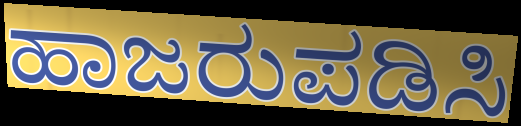
ಹಾಜರುಪಡಿಸಿ